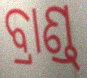
ବ୍ରାଣ୍ଡ୍